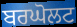
ਬਰਘੋਲਟ